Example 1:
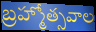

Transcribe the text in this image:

బ్రహ్మోత్సవాల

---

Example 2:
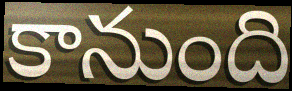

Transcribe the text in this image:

కానుంది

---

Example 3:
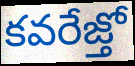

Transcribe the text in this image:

కవరేజ్తో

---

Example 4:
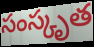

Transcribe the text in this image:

సంస్కృత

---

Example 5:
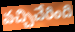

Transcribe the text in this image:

వచ్చిచేరింది